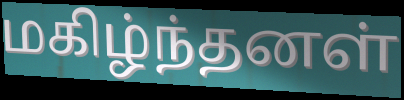
மகிழ்ந்தனள்